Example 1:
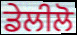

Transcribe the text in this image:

ਡੇਲੀਲੋ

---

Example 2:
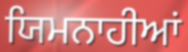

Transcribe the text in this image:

ਯਿਮਨਾਹੀਆਂ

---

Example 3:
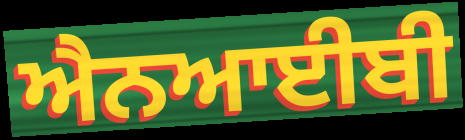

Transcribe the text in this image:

ਐਨਆਈਬੀ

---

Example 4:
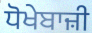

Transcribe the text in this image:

ਧੋਖੇਬਾਜ਼ੀ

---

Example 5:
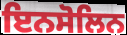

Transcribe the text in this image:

ਇਨਸੋਲਿਨ